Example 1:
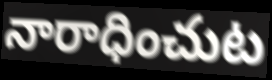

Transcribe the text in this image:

నారాధించుట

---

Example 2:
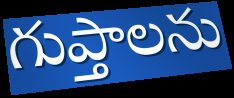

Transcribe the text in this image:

గుప్తాలను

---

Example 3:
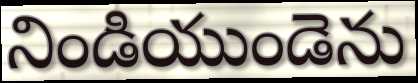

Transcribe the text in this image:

నిండియుండెను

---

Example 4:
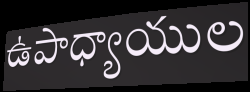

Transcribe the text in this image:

ఉపాధ్యాయుల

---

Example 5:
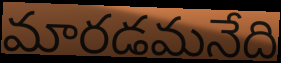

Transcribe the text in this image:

మారడమనేది